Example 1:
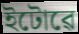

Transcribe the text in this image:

ইটোৱে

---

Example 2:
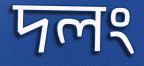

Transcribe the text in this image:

দলং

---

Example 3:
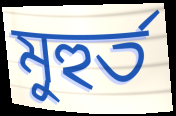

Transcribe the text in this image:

মুহুৰ্ত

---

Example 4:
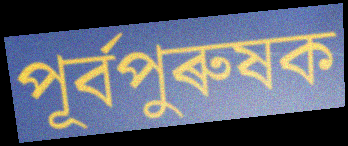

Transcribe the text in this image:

পূৰ্বপুৰুষক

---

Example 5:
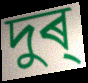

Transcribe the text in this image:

দুৰ্